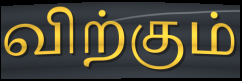
விற்கும்